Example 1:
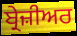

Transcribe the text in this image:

ਬ੍ਰੇਜ਼ੀਅਰ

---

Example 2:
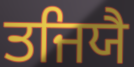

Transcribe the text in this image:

ਤਜਿਯੈ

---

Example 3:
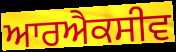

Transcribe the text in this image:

ਆਰਐਕਸੀਵ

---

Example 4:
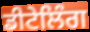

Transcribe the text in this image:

ਡੀਟੇਲਿੰਗ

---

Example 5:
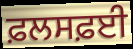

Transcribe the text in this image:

ਫ਼ਲਸਫ਼ਈ